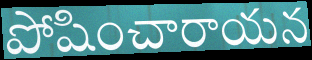
పోషించారాయన